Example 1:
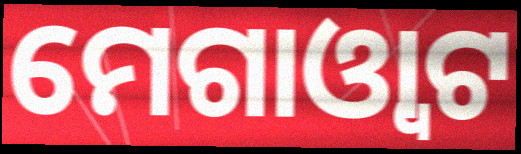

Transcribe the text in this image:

ମେଗାଓ୍ଵାଟ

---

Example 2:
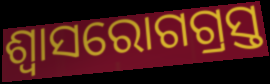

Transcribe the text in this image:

ଶ୍ୱାସରୋଗଗ୍ରସ୍ତ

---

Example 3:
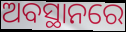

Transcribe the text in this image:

ଅବସ୍ଥାନରେ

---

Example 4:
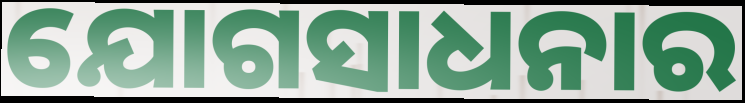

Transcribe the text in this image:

ଯୋଗସାଧନାର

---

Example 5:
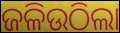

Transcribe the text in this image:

ଜଳିଉଠିଲା